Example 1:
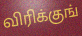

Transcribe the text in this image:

விரிக்குங்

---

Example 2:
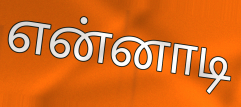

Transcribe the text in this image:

என்னாடி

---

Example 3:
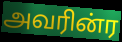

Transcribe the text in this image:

அவரின்ர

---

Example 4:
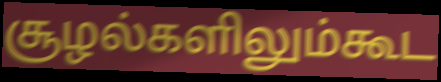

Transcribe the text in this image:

சூழல்களிலும்கூட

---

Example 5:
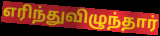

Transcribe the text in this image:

எரிந்துவிழுந்தார்